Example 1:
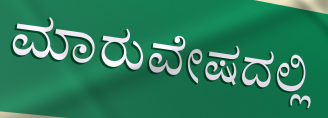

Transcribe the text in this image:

ಮಾರುವೇಷದಲ್ಲಿ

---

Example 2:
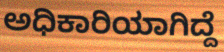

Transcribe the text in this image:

ಅಧಿಕಾರಿಯಾಗಿದ್ದೆ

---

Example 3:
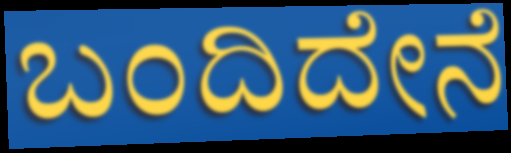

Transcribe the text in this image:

ಬಂದಿದೇನೆ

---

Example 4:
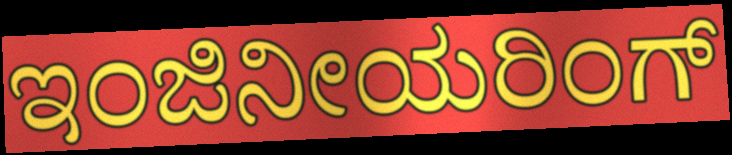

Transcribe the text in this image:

ಇಂಜಿನೀಯರಿಂಗ್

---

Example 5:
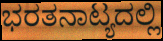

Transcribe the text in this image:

ಭರತನಾಟ್ಯದಲ್ಲಿ